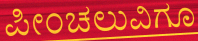
ಪೀಂಚಲುವಿಗೂ